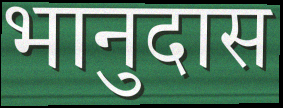
भानुदास